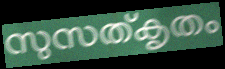
സുസത്കൃതം